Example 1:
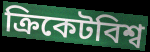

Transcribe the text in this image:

ক্রিকেটবিশ্ব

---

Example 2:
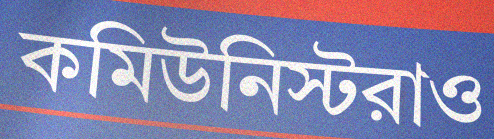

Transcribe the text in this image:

কমিউনিস্টরাও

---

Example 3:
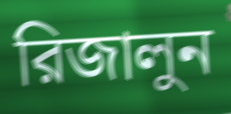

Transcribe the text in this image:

রিজালুন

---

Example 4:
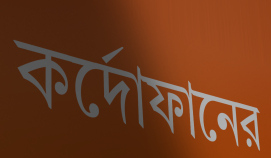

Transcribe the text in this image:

কর্দোফানের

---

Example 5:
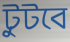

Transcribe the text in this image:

টুটবে